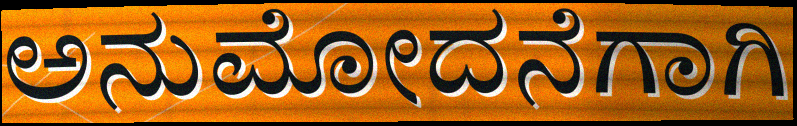
ಅನುಮೋದನೆಗಾಗಿ